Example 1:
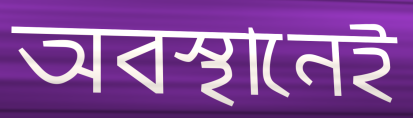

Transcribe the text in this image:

অবস্থানেই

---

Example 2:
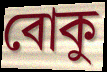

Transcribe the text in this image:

বোকু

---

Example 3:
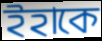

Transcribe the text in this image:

ইহাকে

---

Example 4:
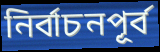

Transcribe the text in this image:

নির্বাচনপূর্ব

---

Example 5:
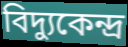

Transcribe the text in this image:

বিদ্যুকেন্দ্র